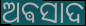
ଅଵସାଦ